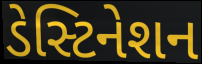
ડેસ્ટિનેશન